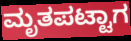
ಮೃತಪಟ್ಟಾಗ